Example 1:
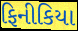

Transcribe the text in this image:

ફિનીકિયા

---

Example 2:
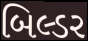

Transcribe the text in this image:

બિલ્ડર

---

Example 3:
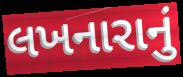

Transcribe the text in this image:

લખનારાનું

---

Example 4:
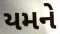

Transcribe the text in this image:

યમને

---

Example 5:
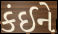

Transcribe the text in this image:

કંઈને